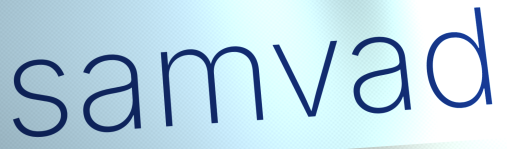
samvad